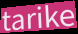
tarike